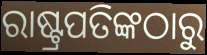
ରାଷ୍ଟ୍ରପତିଙ୍କଠାରୁ